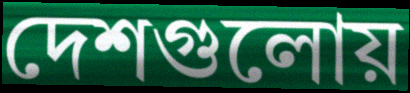
দেশগুলোয়